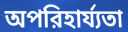
অপরিহার্য্যতা